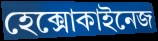
হেক্সোকাইনেজ